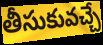
తీసుకువచ్చే